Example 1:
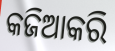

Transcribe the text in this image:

କଜିଆକରି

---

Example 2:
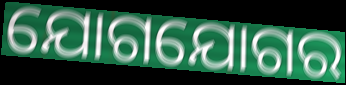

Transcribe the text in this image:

ଯୋଗଯୋଗର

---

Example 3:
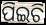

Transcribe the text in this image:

ପିଇଚି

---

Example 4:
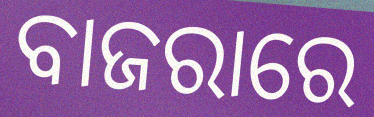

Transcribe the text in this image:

ବାଜରାରେ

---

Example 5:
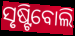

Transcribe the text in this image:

ସୃଷ୍ଟିବୋଲି